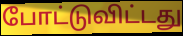
போட்டுவிட்டது